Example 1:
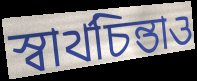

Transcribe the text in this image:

স্বার্থচিন্তাও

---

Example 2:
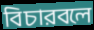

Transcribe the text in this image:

বিচারবলে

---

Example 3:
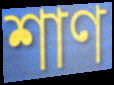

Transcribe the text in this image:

শাণ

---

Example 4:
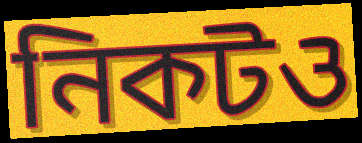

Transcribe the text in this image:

নিকটও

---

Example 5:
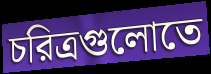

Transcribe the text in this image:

চরিত্রগুলোতে